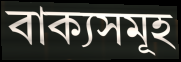
বাক্যসমূহ